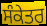
ਸੰਕੇਤਰ